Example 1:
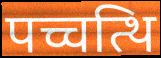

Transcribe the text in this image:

पच्चत्थि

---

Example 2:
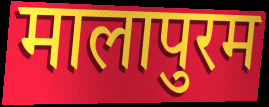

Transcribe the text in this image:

मालापुरम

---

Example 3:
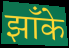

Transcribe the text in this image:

झाँके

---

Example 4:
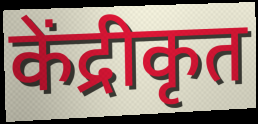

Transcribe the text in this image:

केंद्रीकृत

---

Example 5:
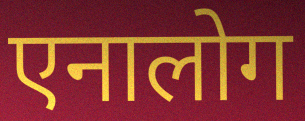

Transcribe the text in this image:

एनालोग